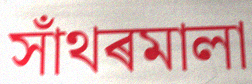
সাঁথৰমালা